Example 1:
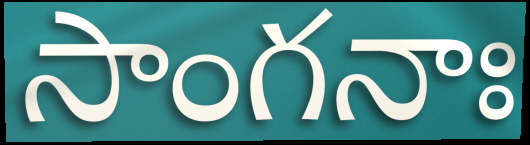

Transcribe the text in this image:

సాంగనాః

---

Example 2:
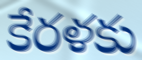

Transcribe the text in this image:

కేరళకు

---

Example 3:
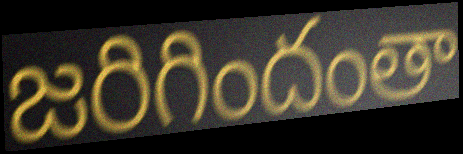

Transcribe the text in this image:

జరిగిందంతా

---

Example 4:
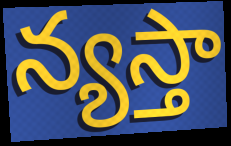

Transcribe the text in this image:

న్యస్తా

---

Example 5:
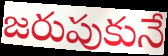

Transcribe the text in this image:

జరుపుకునే